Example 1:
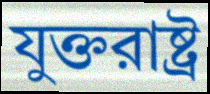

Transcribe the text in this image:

যুক্তরাষ্ট্র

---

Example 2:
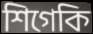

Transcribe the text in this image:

শিগেকি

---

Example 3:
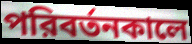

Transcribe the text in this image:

পরিবর্তনকালে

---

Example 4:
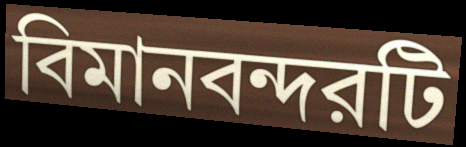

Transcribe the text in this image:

বিমানবন্দরটি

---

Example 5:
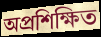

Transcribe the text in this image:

অপ্রশিক্ষিত